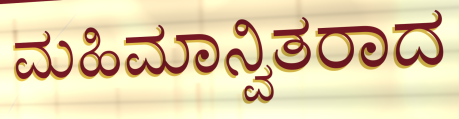
ಮಹಿಮಾನ್ವಿತರಾದ